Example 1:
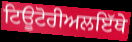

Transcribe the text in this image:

ਟਿਊਟੋਰੀਅਲਇੱਥੇ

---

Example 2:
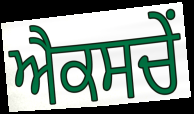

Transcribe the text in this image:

ਐਕਸਚੇਂ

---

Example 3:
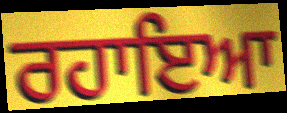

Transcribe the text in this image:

ਰਹਾਇਆ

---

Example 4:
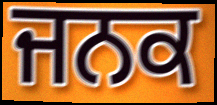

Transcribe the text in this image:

ਜਨਕ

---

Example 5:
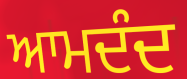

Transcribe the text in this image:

ਆਮਦੰਦ